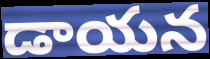
డాయన